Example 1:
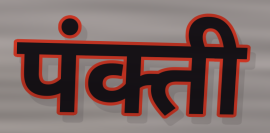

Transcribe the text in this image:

पंक्ती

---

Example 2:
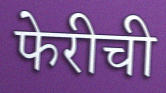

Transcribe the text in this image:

फेरीची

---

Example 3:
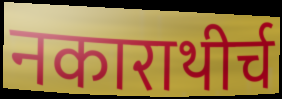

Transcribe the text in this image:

नकाराथीर्च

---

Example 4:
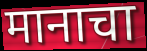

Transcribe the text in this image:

मानाचा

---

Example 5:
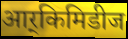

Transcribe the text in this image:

आर्किमिडीज